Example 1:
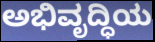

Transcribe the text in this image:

ಅಭಿವೃದ್ಧಿಯ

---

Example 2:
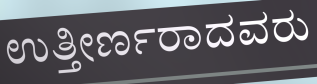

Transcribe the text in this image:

ಉತ್ತೀರ್ಣರಾದವರು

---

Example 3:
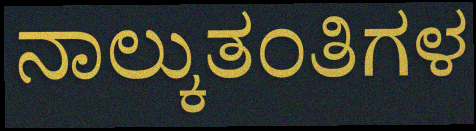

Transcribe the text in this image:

ನಾಲ್ಕುತಂತಿಗಳ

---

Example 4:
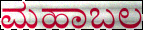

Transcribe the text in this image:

ಮಹಾಬಲ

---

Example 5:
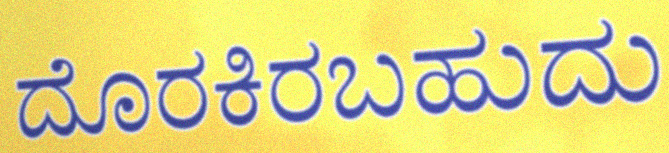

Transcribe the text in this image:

ದೊರಕಿರಬಹುದು